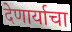
देणार्याचा